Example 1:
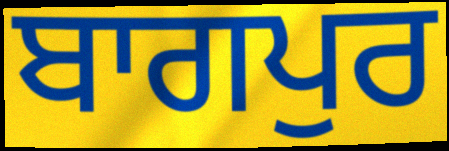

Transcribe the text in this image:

ਬਾਗਪੁਰ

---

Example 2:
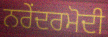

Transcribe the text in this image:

ਨਰੇਂਦਰਮੋਦੀ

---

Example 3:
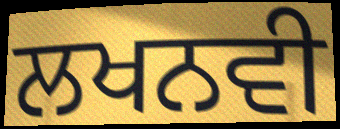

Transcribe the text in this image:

ਲਖਨਵੀ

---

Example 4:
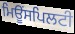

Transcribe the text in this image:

ਮਿਊਂਸਪਿਲਟੀ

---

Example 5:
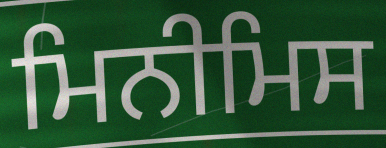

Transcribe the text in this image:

ਮਿਨੀਮਿਸ